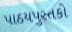
પાઠયપુસ્તકો